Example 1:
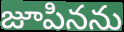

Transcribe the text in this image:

జూపినను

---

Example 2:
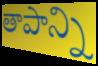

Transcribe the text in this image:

తాపాన్ని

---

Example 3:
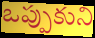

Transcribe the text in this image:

ఒప్పుకుని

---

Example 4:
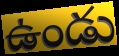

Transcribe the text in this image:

ఉండు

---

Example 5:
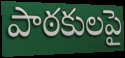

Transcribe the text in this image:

పాఠకులపై